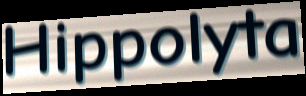
Hippolyta